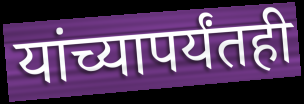
यांच्यापर्यंतही